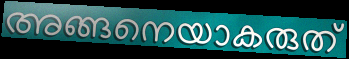
അങ്ങനെയാകരുത്